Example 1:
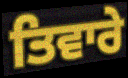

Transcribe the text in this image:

ਤਿਵਾਰੇ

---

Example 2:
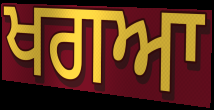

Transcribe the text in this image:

ਖਗਆ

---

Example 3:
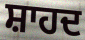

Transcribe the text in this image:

ਸ਼ਾਹਦ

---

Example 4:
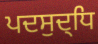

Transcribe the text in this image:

ਪਦਸੁਦ੍ਧਿ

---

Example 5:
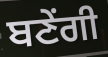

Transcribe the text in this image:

ਬਣੇਂਗੀ